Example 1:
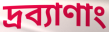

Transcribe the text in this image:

দ্রব্যাণাং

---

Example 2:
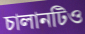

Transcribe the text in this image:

চালানটিও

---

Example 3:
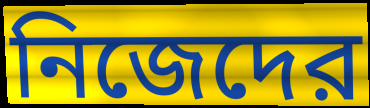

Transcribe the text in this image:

নিজেদের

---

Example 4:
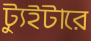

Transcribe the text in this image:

ট্যুইটারে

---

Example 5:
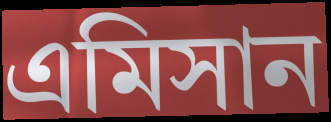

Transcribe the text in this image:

এমিসান